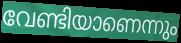
വേണ്ടിയാണെന്നും